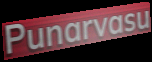
Punarvasu